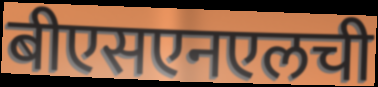
बीएसएनएलची